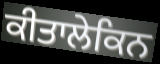
ਕੀਤਾਲੇਕਿਨ